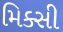
મિક્સી